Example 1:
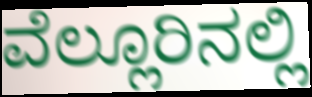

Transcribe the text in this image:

ವೆಲ್ಲೂರಿನಲ್ಲಿ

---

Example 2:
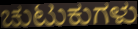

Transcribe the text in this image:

ಚುಟುಕುಗಳು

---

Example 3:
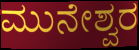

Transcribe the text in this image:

ಮುನೇಶ್ವರ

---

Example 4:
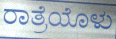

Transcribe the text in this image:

ರಾತ್ರೆಯೊಳು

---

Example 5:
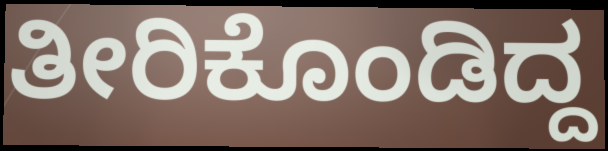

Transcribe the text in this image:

ತೀರಿಕೊಂಡಿದ್ದ